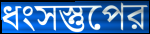
ধংসস্তুপের